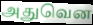
அதுவென